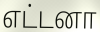
எட்டனா